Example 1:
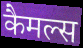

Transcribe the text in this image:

कैमल्स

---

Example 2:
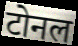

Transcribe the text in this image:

टोनल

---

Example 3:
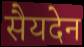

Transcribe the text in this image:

सैयदेन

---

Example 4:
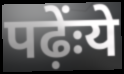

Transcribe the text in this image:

पढ़ेंःये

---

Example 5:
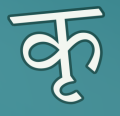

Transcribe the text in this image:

कृ